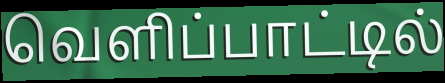
வெளிப்பாட்டில்